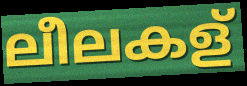
ലീലകള്